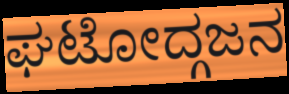
ಘಟೋದ್ಗಜನ